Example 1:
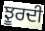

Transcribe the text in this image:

ਝੂਰਦੀ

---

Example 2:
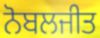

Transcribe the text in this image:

ਨੋਬਲਜੀਤ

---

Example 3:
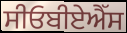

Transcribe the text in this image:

ਸੀਓਬੀਏਐੱਸ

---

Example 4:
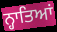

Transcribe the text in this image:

ਨ੍ਹਾਤਿਆਂ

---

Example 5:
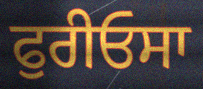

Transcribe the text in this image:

ਫੁਰੀਓਸਾ